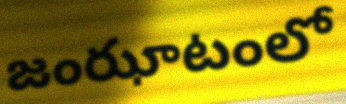
జంఝాటంలో